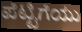
ಪೆಟ್ಟಿಗೆಯು